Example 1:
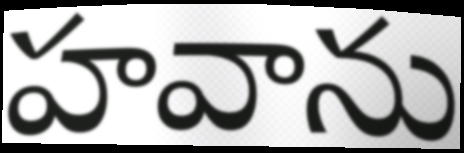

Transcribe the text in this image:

హవాను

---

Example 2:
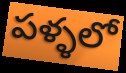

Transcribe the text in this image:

పళ్ళలో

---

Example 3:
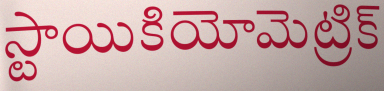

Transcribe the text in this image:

స్టాయికియోమెట్రిక్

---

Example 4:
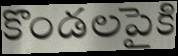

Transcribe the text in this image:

కొండలపైకి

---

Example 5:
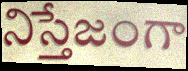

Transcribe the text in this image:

నిస్తేజంగా